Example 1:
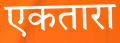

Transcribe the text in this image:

एकतारा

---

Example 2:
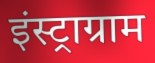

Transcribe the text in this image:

इंस्ट्राग्राम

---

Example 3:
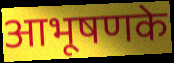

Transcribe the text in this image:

आभूषणके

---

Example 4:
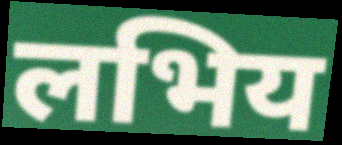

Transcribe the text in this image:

लभिय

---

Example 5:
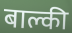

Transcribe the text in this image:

बाल्की